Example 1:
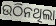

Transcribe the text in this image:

ଉଠିନଥିଲା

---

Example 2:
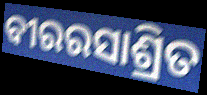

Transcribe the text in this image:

ବୀରରସାଶ୍ରିତ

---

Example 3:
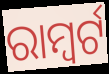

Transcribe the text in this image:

ରାମ୍ବର୍ଟ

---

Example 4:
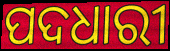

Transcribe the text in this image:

ପଦଧାରୀ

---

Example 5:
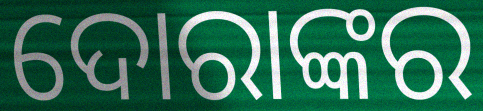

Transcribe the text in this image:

ଦୋରାଙ୍କର